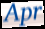
Apr